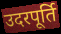
उदरपूर्ति